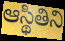
ఆస్థితిని